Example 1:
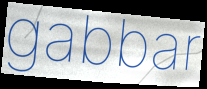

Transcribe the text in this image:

gabbar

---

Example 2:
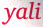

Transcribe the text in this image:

yali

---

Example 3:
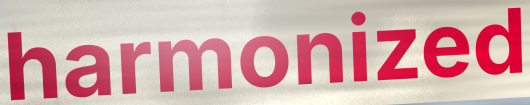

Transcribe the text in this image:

harmonized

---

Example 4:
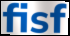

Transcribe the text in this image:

fisf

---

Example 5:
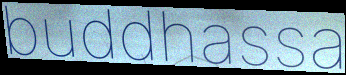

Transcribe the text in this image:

buddhassa